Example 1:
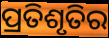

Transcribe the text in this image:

ପ୍ରତିଶୃତିର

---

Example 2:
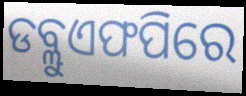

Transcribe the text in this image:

ଡବ୍ଲୁଏଫପିରେ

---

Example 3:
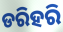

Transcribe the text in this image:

ଡରିହରି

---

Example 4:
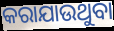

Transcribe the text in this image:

କରାଯାଉଥୁବା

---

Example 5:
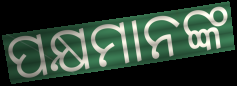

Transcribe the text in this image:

ପକ୍ଷମାନଙ୍କ